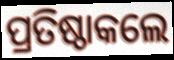
ପ୍ରତିଷ୍ଠାକଲେ